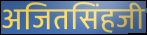
अजितसिंहजी